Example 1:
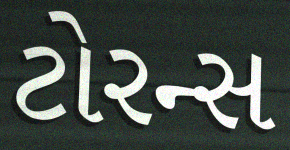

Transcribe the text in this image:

ટોરન્સ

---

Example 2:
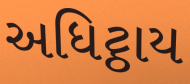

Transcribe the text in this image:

અધિટ્ઠાય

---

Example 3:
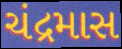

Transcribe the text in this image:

ચંદ્રમાસ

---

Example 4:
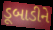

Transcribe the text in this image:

ડૂબાડીને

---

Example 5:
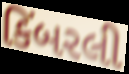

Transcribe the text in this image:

કિંબરલી